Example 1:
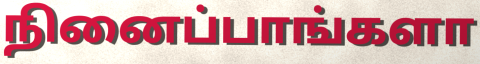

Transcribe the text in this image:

நினைப்பாங்களா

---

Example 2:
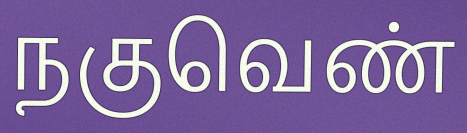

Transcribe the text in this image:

நகுவெண்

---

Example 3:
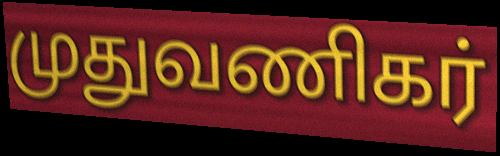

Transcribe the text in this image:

முதுவணிகர்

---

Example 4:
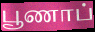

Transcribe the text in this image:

பூணாப்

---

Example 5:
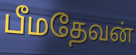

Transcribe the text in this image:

பீமதேவன்